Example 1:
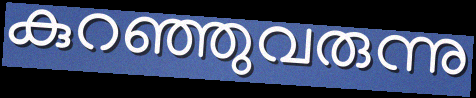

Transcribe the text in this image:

കുറഞ്ഞുവരുന്നു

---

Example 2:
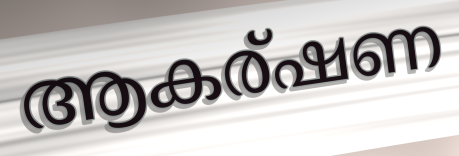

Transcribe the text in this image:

ആകര്ഷണ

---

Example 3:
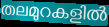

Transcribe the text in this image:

തലമുറകളിൽ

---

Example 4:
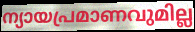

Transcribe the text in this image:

ന്യായപ്രമാണവുമില്ല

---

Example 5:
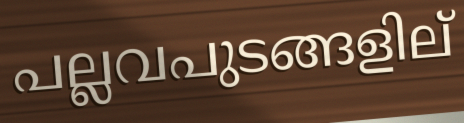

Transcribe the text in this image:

പല്ലവപുടങ്ങളില്